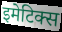
इमेटिक्स